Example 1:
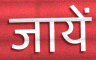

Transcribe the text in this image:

जायें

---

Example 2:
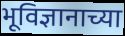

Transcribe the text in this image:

भूविज्ञानाच्या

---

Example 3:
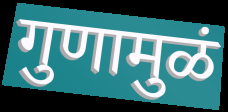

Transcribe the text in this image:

गुणामुळं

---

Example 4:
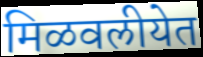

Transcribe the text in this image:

मिळवलीयेत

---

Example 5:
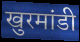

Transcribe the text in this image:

खुरमांडी